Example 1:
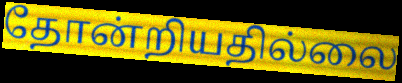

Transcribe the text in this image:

தோன்றியதில்லை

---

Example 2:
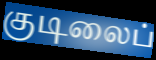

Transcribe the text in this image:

குடிலைப்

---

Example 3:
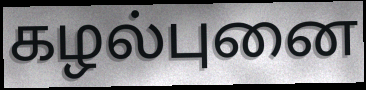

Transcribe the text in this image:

கழல்புனை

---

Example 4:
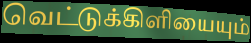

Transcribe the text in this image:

வெட்டுக்கிளியையும்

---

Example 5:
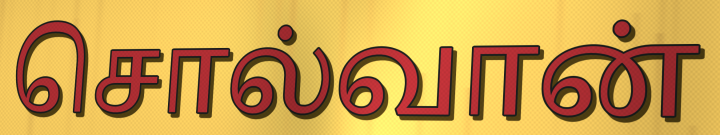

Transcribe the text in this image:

சொல்வான்